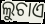
ଲୁଚାଏ